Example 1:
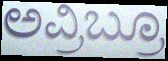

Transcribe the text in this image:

ಅವ್ರಿಬ್ರೂ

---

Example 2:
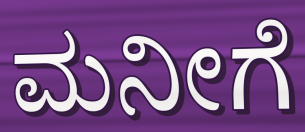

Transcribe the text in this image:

ಮನೀಗೆ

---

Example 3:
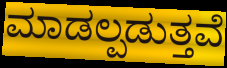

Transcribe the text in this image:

ಮಾಡಲ್ಪಡುತ್ತವೆ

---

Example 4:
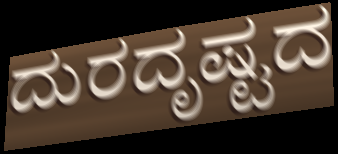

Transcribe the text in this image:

ದುರದೃಷ್ಟದ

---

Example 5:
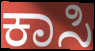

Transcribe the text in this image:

ಕಾಸಿ